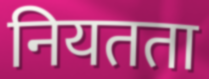
नियतता